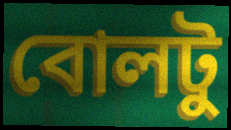
বোলটু